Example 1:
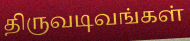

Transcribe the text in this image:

திருவடிவங்கள்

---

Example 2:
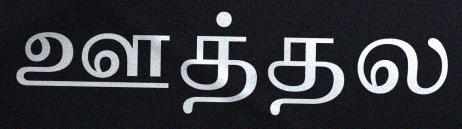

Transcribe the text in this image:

ஊத்தல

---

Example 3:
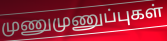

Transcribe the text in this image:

முணுமுணுப்புகள்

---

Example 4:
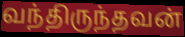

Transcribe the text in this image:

வந்திருந்தவன்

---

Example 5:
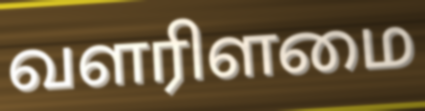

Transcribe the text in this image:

வளரிளமை